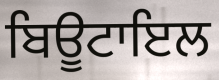
ਬਿਊਟਾਇਲ